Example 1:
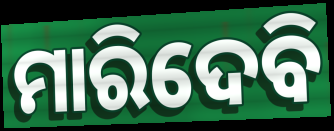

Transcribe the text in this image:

ମାରିଦେବି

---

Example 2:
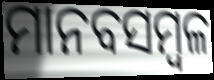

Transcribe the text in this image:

ମାନବସମ୍ବଳ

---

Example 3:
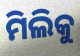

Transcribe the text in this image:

ମିଲିକୁ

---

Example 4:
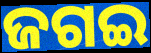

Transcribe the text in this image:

ଜଗଇ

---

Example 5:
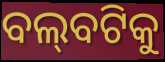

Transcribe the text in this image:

ବଲ୍‌ବଟିକୁ